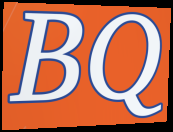
BQ